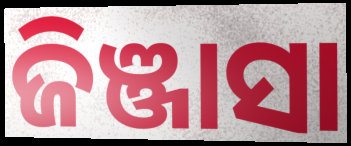
ଜିଞ୍ଜାସା